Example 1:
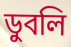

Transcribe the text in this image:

ডুবলি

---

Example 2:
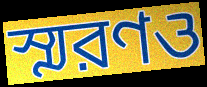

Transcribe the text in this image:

স্মরণও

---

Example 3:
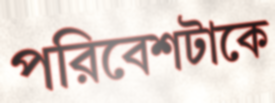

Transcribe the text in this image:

পরিবেশটাকে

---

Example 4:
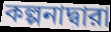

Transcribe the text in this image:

কল্পনাদ্বারা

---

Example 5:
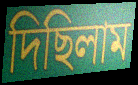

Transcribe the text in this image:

দিছিলাম